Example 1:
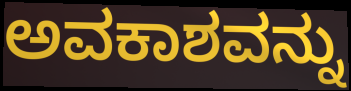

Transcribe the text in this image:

ಅವಕಾಶವನ್ನು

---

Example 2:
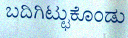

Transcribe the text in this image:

ಬದಿಗಿಟ್ಟುಕೊಂಡು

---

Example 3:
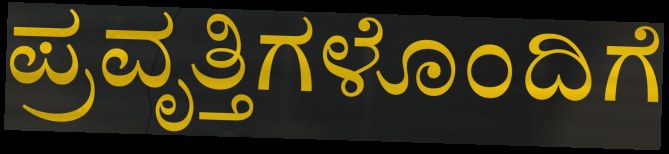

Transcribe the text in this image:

ಪ್ರವೃತ್ತಿಗಳೊಂದಿಗೆ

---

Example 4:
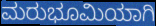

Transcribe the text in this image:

ಮರುಭೂಮಿಯಾಗಿ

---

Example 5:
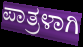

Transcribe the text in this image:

ಪಾತ್ರಳಾಗಿ